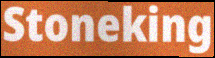
Stoneking